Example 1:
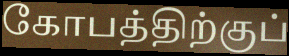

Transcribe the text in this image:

கோபத்திற்குப்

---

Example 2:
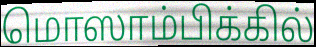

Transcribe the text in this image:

மொஸாம்பிக்கில்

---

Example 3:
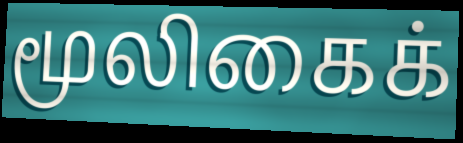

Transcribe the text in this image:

மூலிகைக்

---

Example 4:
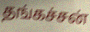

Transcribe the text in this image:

தங்கச்சன்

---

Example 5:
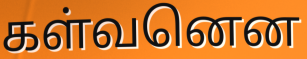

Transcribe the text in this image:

கள்வனென